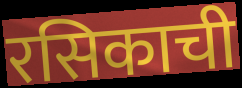
रसिकाची